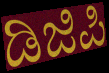
ಡಿಜಿಪಿ